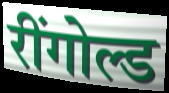
रींगोल्ड